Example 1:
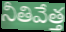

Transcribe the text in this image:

నీతివేత్త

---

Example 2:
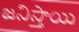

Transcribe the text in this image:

జనిస్తాయి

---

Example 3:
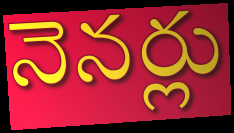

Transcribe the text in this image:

నెనర్లు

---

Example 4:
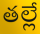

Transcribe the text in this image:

తల్లే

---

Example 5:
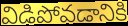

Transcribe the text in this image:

విడిపోవడానికి